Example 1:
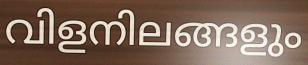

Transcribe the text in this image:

വിളനിലങ്ങളും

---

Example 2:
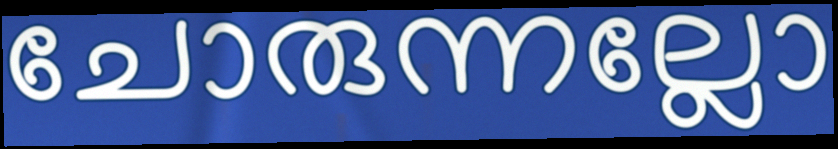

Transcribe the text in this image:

ചോരുന്നല്ലോ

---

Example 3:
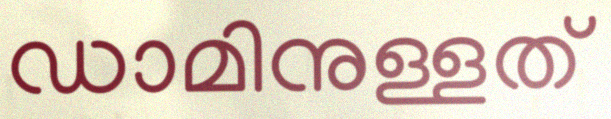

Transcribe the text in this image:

ഡാമിനുള്ളത്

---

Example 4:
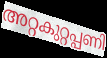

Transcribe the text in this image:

അറ്റകുറ്റപ്പണി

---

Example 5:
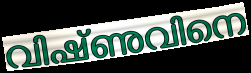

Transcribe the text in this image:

വിഷ്‌ണുവിനെ